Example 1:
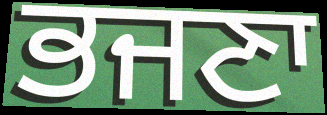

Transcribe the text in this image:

ਭਜਣਾ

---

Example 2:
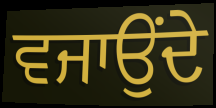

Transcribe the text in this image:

ਵਜਾਉਂਦੇ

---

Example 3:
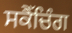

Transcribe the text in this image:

ਸਕੈੱਚਿੰਗ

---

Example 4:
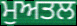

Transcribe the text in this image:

ਮੁਅਤਲ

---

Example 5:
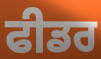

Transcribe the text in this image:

ਫੀਡਰ